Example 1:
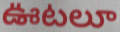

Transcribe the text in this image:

ఊటలూ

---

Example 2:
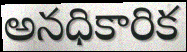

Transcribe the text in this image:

అనధికారిక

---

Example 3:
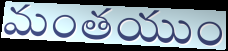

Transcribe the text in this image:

మంతయుం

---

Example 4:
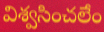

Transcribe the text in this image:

విశ్వసించలేం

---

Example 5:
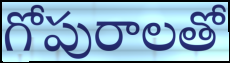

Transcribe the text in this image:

గోపురాలతో